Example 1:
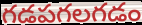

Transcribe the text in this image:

గడపగలగడం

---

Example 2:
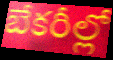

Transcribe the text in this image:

బేకరీల్లో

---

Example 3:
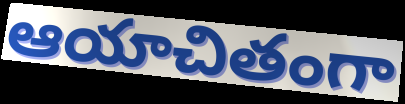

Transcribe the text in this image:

ఆయాచితంగా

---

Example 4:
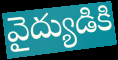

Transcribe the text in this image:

వైద్యుడికి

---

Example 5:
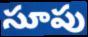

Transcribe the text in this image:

సూపు